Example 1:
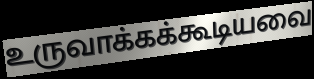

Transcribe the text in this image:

உருவாக்கக்கூடியவை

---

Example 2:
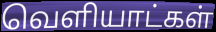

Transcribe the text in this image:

வெளியாட்கள்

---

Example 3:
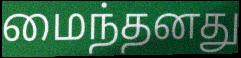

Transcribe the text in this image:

மைந்தனது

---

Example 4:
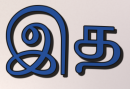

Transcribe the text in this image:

இத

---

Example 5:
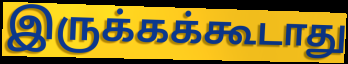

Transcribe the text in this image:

இருக்கக்கூடாது